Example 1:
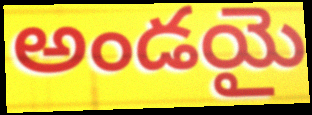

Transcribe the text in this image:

అండయై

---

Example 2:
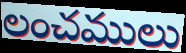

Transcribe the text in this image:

లంచములు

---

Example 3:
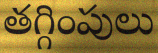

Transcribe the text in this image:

తగ్గింపులు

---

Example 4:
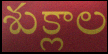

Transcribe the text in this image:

శుక్లాల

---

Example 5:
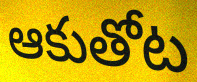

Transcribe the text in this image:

ఆకుతోట